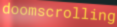
doomscrolling